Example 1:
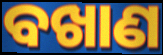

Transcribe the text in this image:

ବଖାଣ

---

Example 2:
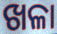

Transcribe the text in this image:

ଖଳା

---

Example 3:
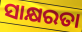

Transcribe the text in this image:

ସାକ୍ଷରତା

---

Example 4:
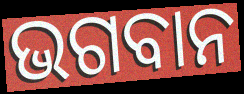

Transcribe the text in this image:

ଭଗବାନ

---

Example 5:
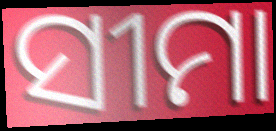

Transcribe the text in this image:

ସୀମା